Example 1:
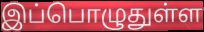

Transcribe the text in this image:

இப்பொழுதுள்ள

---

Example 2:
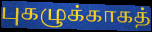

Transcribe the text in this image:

புகழுக்காகத்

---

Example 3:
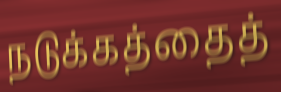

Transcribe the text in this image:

நடுக்கத்தைத்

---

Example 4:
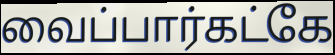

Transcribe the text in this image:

வைப்பார்கட்கே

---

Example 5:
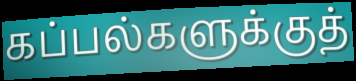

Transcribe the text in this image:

கப்பல்களுக்குத்